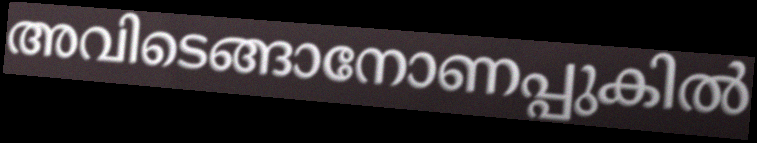
അവിടെങ്ങാനോണപ്പുകിൽ